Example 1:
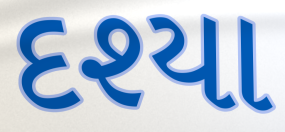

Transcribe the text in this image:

દશ્યા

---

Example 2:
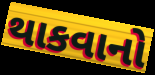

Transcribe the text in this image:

થાકવાનો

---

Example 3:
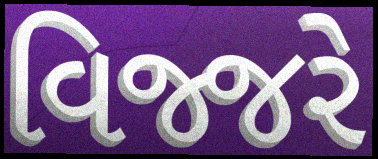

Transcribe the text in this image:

વિજ્જરે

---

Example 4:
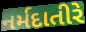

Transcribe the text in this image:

નર્મદાતીરે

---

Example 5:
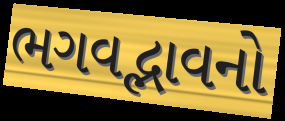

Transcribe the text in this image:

ભગવદ્ભાવનો